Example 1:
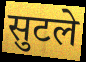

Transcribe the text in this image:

सुटले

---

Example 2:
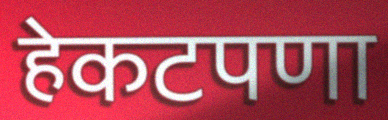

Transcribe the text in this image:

हेकटपणा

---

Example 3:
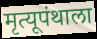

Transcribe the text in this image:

मृत्यूपंथाला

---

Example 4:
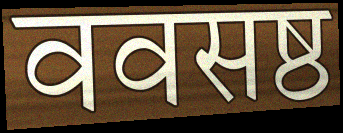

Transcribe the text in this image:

ववसष्ठ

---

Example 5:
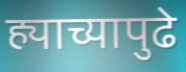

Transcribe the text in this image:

ह्याच्यापुढे